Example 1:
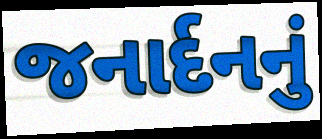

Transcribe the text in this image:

જનાર્દનનું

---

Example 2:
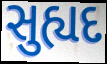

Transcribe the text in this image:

સુહ્યદ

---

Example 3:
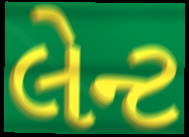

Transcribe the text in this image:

લેન્ટ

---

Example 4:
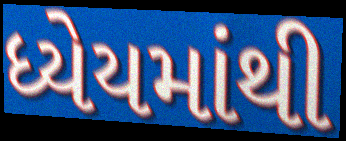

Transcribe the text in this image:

ધ્યેયમાંથી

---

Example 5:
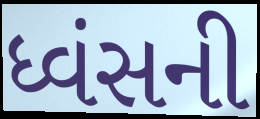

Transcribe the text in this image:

ધ્વંસની